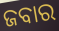
ଜବାର